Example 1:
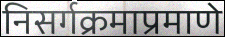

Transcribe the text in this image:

निसर्गक्रमाप्रमाणे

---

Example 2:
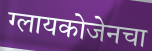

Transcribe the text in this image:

ग्लायकोजेनचा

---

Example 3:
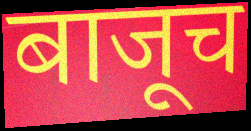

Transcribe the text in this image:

बाजूच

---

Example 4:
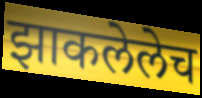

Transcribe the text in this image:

झाकलेलेच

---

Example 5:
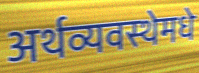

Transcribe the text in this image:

अर्थव्यवस्थेमधे